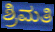
ಶ್ರಿಮತಿ